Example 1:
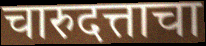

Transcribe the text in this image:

चारुदत्ताचा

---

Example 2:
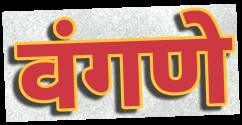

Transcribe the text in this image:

वंगणे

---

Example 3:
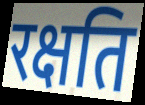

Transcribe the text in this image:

रक्षति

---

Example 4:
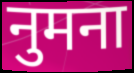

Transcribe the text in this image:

नुमना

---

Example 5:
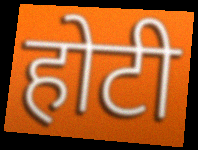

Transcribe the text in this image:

होटी